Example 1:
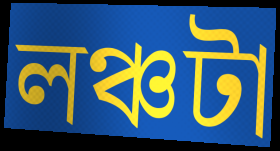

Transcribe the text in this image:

লঞ্চটা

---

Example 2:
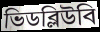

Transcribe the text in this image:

ভিডব্লিউবি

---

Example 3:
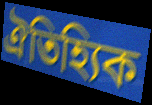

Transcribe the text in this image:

ঐতিহ্যিক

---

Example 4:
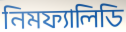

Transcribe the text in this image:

নিমফ্যালিডি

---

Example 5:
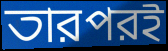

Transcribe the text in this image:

তারপরই